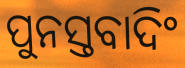
ପୁନସ୍ତବାଦିଂ